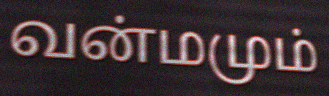
வன்மமும்